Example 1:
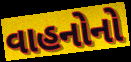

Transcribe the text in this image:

વાહનોનો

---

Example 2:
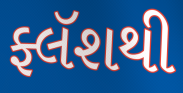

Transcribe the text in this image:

ફ્લૅશથી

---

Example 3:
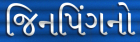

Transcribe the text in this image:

જિનપિંગનો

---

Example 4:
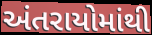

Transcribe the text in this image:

અંતરાયોમાંથી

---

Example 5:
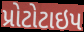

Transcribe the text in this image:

પ્રોટોટાઇપ